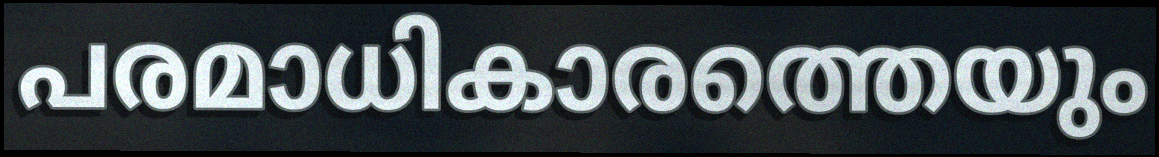
പരമാധികാരത്തെയും